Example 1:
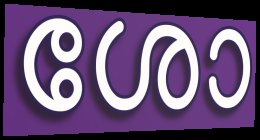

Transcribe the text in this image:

ശോ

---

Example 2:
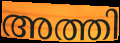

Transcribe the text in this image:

അത്തി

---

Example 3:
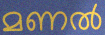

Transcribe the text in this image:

മണൽ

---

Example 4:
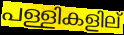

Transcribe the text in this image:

പള്ളികളില്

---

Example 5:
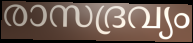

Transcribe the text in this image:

രാസദ്രവ്യം